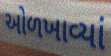
ઓળખાવ્યાં